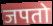
जपतो